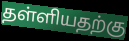
தள்ளியதற்கு